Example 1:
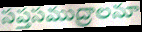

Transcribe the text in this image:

సప్తసముద్రాలనూ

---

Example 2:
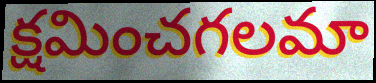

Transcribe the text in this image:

క్షమించగలమా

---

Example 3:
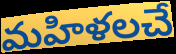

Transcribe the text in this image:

మహిళలచే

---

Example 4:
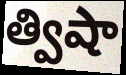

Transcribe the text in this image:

త్విషా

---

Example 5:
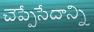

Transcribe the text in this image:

చెప్పేసేదాన్ని